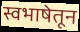
स्वभाषेतून